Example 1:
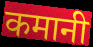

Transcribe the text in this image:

कमानी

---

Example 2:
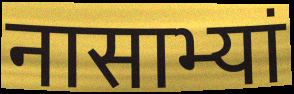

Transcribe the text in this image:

नासाभ्यां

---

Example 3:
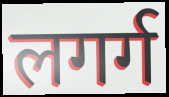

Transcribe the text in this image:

लगर्ग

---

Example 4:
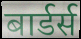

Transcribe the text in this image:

बार्डर्स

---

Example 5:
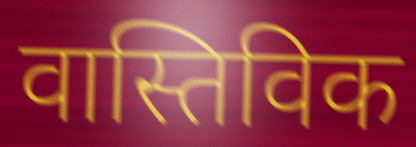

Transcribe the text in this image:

वास्तिविक